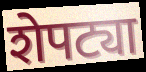
शेपट्या